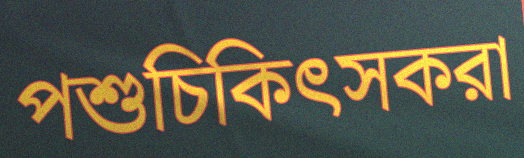
পশুচিকিৎসকরা